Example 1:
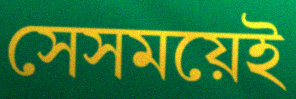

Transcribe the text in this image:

সেসময়েই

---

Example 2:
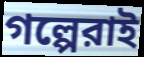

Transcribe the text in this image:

গল্পেরাই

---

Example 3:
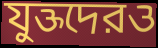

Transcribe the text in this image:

যুক্তদেরও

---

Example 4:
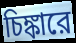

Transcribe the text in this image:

চিঙ্কারে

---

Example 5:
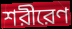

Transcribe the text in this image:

শরীরেণ